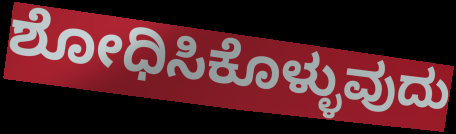
ಶೋಧಿಸಿಕೊಳ್ಳುವುದು